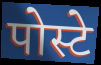
पोस्टे